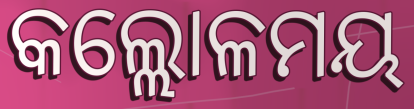
କଲ୍ଲୋଳମୟ